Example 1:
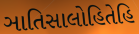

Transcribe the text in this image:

ઞાતિસાલોહિતેહિ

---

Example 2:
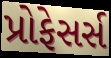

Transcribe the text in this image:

પ્રોફેસર્સ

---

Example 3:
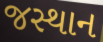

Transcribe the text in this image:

જસ્થાન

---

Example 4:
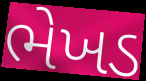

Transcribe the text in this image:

ભેખડ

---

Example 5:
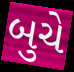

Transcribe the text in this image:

બુચે